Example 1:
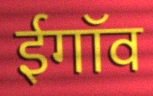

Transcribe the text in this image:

ईगॉव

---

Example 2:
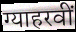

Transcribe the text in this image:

ग्याहरवीं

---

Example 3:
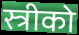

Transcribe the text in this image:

स्त्रीको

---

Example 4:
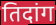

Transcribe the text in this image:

तिदांग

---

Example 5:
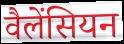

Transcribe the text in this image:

वैलेंसियन